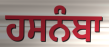
ਹਸਨੰਬਾ